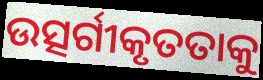
ଉତ୍ସର୍ଗୀକୃତତାକୁ